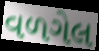
વળગેલ